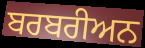
ਬਰਬਰੀਅਨ